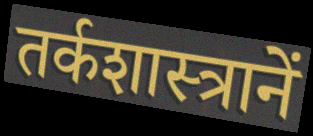
तर्कशास्त्रानें